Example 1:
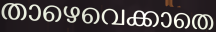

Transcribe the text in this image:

താഴെവെക്കാതെ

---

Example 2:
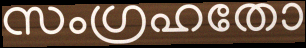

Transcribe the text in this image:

സംഗ്രഹതോ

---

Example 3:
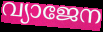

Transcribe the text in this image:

വ്യാജേന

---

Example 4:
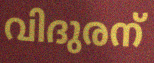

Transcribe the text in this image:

വിദുരന്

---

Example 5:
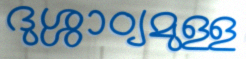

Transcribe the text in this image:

ദുശ്ശാഠ്യമുള്ള